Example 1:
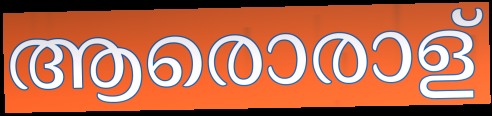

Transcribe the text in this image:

ആരൊരാള്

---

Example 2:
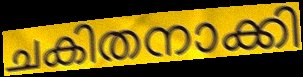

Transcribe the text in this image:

ചകിതനാക്കി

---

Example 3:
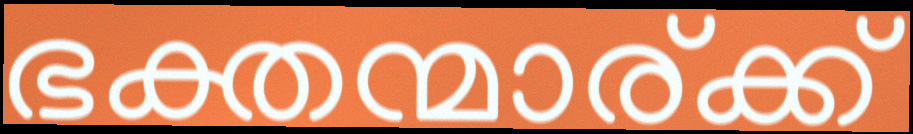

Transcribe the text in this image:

ഭക്തന്മാര്ക്ക്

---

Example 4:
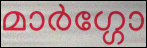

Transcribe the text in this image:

മാർഗ്ഗോ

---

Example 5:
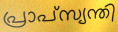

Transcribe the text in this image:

പ്രാപ്സ്യന്തി